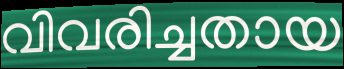
വിവരിച്ചതായ